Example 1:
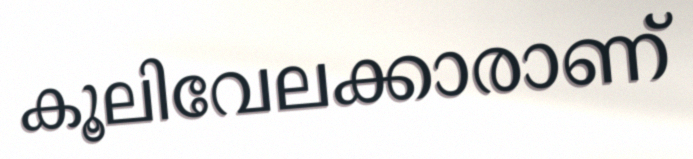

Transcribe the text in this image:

കൂലിവേലക്കാരാണ്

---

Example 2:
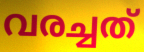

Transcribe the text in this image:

വരച്ചത്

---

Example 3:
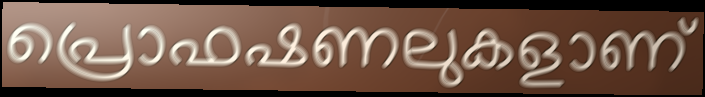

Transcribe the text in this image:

പ്രൊഫഷണലുകളാണ്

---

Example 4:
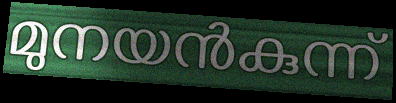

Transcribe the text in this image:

മുനയൻകുന്ന്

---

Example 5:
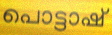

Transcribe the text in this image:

പൊട്ടാഷ്